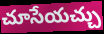
చూసేయచ్చు